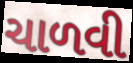
ચાળવી